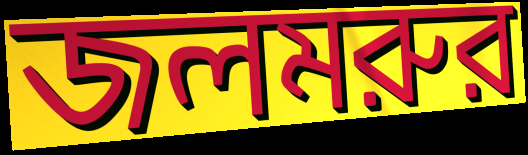
জলমরুর